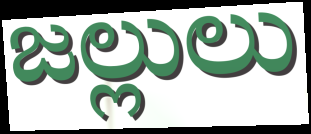
జల్లులు